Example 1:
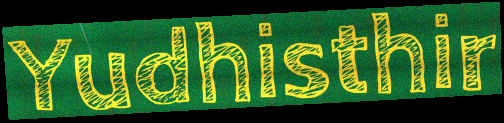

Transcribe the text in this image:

Yudhisthir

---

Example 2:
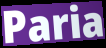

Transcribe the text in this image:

Paria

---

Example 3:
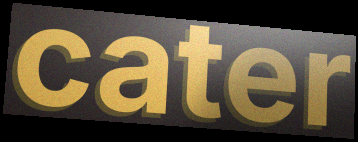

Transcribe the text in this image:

cater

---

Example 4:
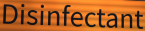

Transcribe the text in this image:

Disinfectant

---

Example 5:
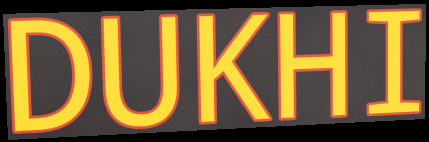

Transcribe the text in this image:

DUKHI